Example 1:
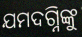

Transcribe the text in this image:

ଯମଦଗ୍ନିଙ୍କୁ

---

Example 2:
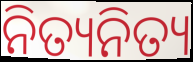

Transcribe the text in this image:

ନିତ୍ୟନିତ୍ୟ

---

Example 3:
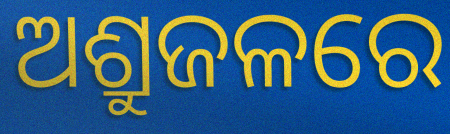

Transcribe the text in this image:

ଅଶ୍ରୁଜଳରେ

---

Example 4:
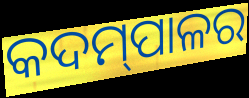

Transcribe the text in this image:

କଦମ୍‍ପାଳର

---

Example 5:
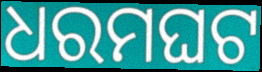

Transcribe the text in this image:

ଧରମଘଟ